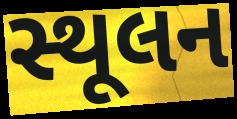
સ્થૂલન